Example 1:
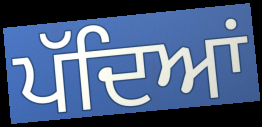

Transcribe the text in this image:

ਪੱਦਿਆਂ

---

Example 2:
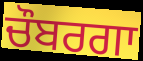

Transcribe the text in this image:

ਚੌਬਰਗਾ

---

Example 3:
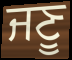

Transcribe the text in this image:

ਜਣੂ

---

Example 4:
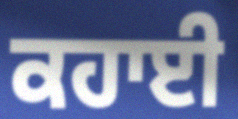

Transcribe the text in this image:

ਕਹਾਈ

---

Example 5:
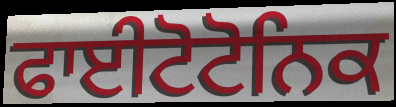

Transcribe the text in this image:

ਫਾਈਟੋਟੋਨਿਕ